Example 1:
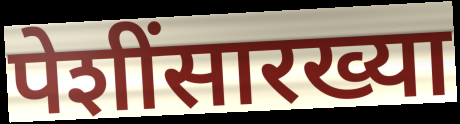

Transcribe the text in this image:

पेशींसारख्या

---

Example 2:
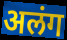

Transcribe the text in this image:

अलंग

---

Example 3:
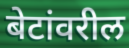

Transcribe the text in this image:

बेटांवरील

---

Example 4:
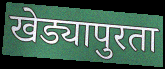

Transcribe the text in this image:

खेड्यापुरता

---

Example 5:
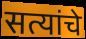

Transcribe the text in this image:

सत्यांचे